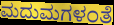
ಮದುಮಗಳಂತೆ